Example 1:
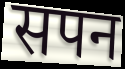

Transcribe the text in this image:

सपन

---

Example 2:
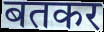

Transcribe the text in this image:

बतकर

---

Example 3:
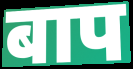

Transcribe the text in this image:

बाप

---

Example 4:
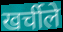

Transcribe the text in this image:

खर्चीले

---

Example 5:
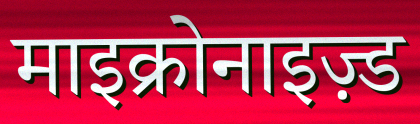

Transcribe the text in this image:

माइक्रोनाइज़्ड